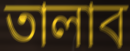
তালাব